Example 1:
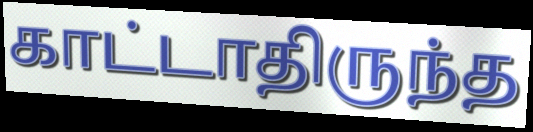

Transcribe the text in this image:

காட்டாதிருந்த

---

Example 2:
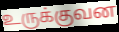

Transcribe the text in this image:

உருக்குவன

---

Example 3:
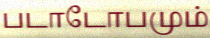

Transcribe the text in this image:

படாடோபமும்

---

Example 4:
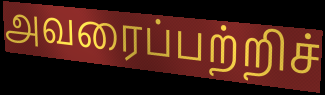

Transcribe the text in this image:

அவரைப்பற்றிச்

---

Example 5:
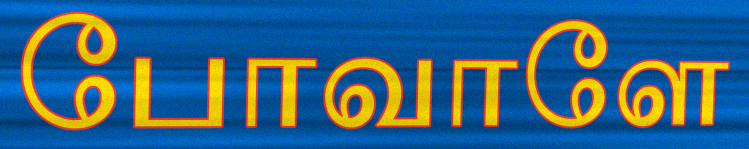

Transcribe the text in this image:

போவாளே